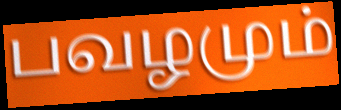
பவழமும்